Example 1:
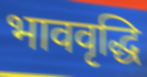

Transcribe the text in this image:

भाववृद्धि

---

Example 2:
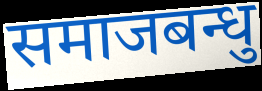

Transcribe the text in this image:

समाजबन्धु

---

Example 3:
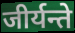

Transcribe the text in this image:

जीर्यन्ते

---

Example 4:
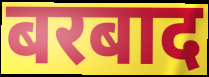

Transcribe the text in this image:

बरबाद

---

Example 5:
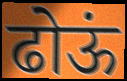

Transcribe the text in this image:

ढोऊं